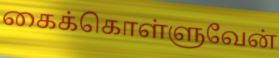
கைக்கொள்ளுவேன்